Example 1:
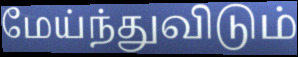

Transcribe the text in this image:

மேய்ந்துவிடும்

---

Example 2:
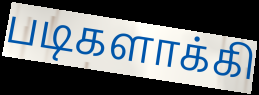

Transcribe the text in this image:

படிகளாக்கி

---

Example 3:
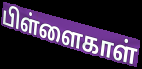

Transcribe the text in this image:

பிள்ளைகாள்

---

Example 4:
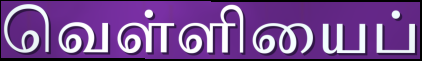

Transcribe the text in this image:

வெள்ளியைப்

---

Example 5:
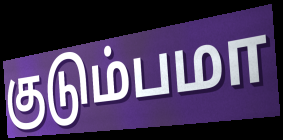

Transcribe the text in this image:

குடும்பமா